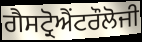
ਗੈਸਟ੍ਰੋਐਂਟਰੌਲੋਜੀ